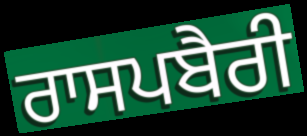
ਰਾਸਪਬੈਰੀ